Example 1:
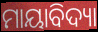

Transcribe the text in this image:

ମାୟାବିଦ୍ୟା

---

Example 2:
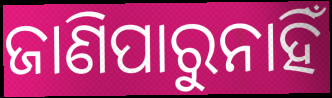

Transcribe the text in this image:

ଜାଣିପାରୁନାହିଁ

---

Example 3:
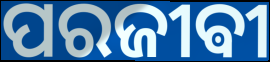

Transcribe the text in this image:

ପରଜୀଵୀ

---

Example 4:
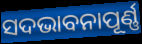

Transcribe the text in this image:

ସଦଭାବନାପୂର୍ଣ୍ଣ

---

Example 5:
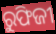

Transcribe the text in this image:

ରୁଫିଜୀ